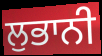
ਲੁਭਾਨੀ